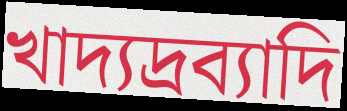
খাদ্যদ্রব্যাদি